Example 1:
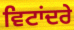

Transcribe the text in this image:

ਵਿਟਾਂਦਰੇ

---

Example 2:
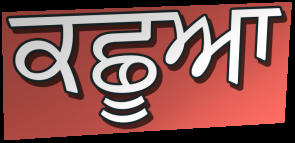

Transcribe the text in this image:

ਕਛੂਆ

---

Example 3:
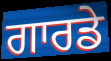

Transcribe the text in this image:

ਗਾਰਡੇ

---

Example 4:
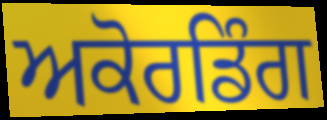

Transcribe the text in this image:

ਅਕੋਰਡਿੰਗ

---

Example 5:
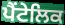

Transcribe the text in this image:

ਪੈਂਟੇਲਿਕ